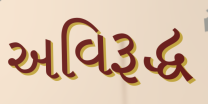
અવિરૂદ્ધ